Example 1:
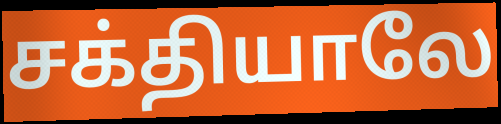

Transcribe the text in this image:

சக்தியாலே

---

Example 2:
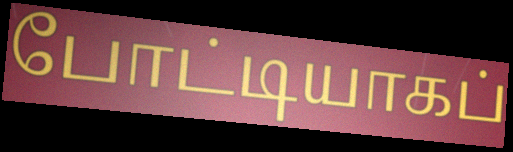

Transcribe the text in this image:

போட்டியாகப்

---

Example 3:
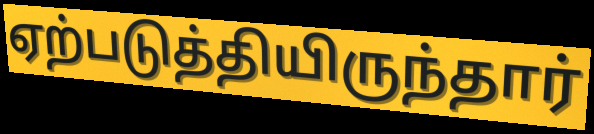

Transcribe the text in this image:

ஏற்படுத்தியிருந்தார்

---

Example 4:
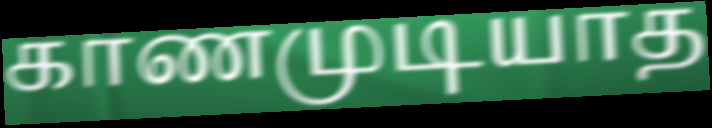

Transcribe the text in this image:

காணமுடியாத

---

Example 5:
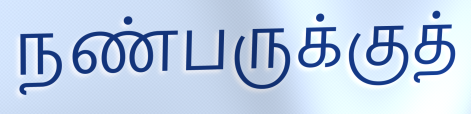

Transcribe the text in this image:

நண்பருக்குத்